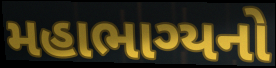
મહાભાગ્યનો